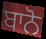
ਬਾਨੋ